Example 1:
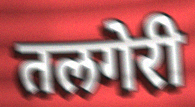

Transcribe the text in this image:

तलगेरी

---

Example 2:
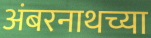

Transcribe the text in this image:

अंबरनाथच्या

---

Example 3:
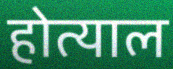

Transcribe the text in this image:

होत्याल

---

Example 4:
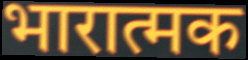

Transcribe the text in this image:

भारात्मक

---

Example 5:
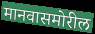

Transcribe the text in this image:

मानवासमोरील